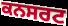
ਕਨਸਰਟ